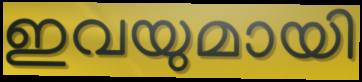
ഇവയുമായി